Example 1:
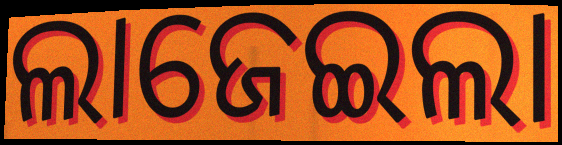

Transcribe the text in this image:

ଲାଜେଇଲା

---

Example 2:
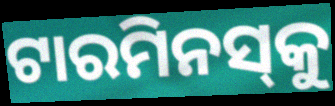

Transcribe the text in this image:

ଟାରମିନସ୍‌କୁ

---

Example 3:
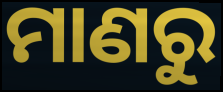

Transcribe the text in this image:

ମାଣରୁ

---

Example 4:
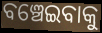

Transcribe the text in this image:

ବଞ୍ଚେଇବାକୁ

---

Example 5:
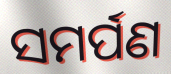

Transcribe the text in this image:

ସମର୍ପଣ